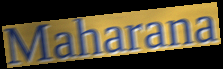
Maharana